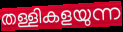
തള്ളികളയുന്ന